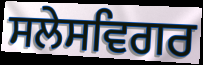
ਸਲੇਸਵਿਗਰ